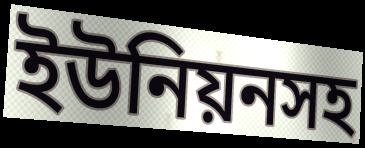
ইউনিয়নসহ